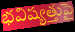
భవిష్యత్తుపై